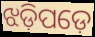
ଝଡ଼ିପଡ଼େ